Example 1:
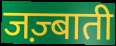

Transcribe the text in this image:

जज़्बाती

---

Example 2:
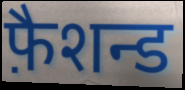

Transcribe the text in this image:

फ़ैशन्ड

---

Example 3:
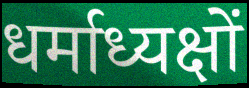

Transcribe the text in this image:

धर्माध्यक्षों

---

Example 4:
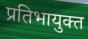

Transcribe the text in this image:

प्रतिभायुक्त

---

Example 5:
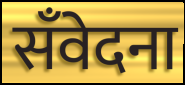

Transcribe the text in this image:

सँवेदना